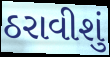
ઠરાવીશું